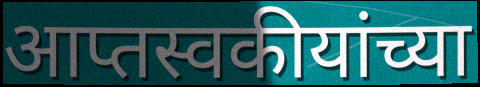
आप्तस्वकीयांच्या